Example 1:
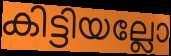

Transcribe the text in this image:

കിട്ടിയല്ലോ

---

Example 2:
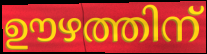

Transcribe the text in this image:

ഊഴത്തിന്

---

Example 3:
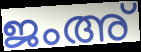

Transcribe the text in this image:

ജംഅ്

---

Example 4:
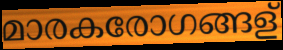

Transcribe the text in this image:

മാരകരോഗങ്ങള്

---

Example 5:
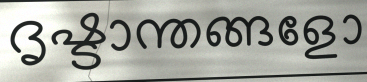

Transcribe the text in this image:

ദൃഷ്ടാന്തങ്ങളോ